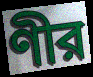
ণীর